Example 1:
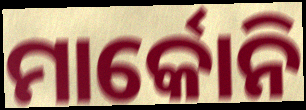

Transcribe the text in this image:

ମାର୍କୋନି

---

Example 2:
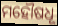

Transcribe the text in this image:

ମହୌଷଧୂ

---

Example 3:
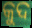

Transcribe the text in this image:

କୁଦ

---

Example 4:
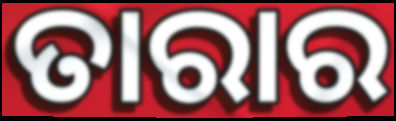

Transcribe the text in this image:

ତାରାର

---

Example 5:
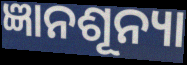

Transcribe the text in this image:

ଜ୍ଞାନଶୂନ୍ୟା